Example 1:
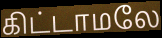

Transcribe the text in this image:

கிட்டாமலே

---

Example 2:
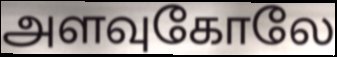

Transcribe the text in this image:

அளவுகோலே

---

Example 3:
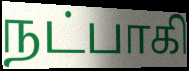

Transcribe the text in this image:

நட்பாகி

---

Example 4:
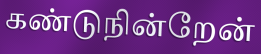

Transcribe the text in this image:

கண்டுநின்றேன்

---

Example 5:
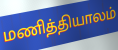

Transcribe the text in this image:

மணித்தியாலம்